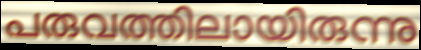
പരുവത്തിലായിരുന്നു